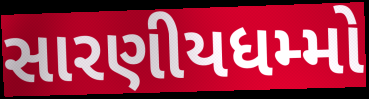
સારણીયધમ્મો